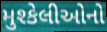
મુશ્કેલીઓનો